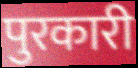
पुरकारी